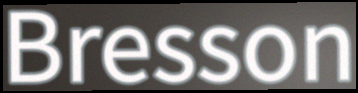
Bresson